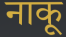
नाकू